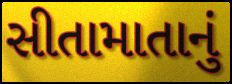
સીતામાતાનું